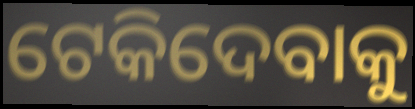
ଟେକିଦେବାକୁ